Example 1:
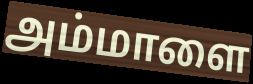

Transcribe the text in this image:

அம்மாளை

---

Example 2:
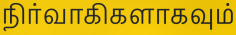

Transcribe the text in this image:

நிர்வாகிகளாகவும்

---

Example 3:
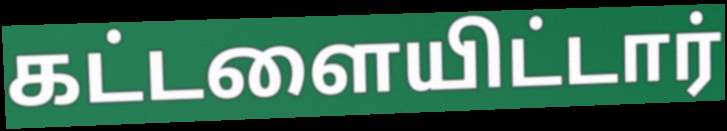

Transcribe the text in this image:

கட்டளையிட்டார்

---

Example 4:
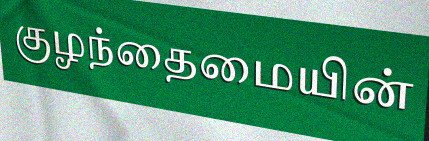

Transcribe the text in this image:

குழந்தைமையின்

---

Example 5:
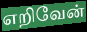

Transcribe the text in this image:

எறிவேன்